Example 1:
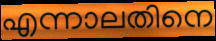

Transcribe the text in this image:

എന്നാലതിനെ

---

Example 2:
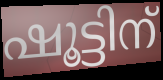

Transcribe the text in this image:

ഷൂട്ടിന്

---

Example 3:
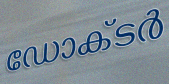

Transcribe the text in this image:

ഡോക്‌ടർ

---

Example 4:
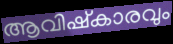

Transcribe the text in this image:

ആവിഷ്കാരവും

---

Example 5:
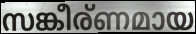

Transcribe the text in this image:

സങ്കീര്ണമായ